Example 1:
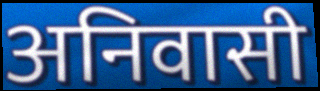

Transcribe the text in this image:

अनिवासी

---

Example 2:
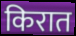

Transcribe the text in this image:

किरात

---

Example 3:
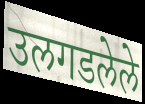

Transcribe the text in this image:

उलगडलेले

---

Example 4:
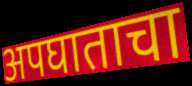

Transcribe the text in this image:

अपघाताचा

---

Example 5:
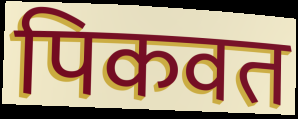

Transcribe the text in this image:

पिकवत